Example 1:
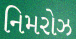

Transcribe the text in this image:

નિમરોઝ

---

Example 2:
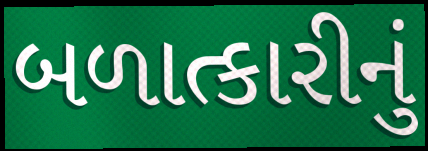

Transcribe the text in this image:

બળાત્કારીનું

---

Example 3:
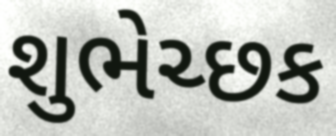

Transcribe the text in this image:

શુભેચ્છક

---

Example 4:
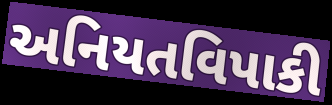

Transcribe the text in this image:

અનિયતવિપાકી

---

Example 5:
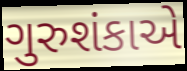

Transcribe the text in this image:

ગુરુશંકાએ